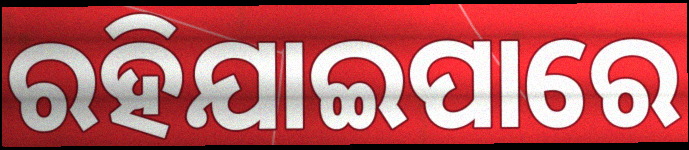
ରହିଯାଇପାରେ